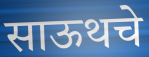
साऊथचे